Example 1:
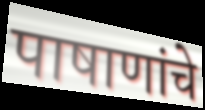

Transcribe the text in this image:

पाषाणांचे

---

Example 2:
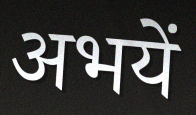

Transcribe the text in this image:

अभयें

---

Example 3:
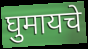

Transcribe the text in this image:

घुमायचे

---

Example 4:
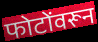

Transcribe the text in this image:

फोटोंवरून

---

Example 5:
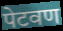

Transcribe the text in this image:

पेटवण